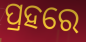
ପ୍ରହରେ